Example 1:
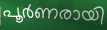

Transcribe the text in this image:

പൂർണരായി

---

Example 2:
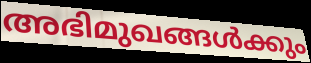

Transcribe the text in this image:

അഭിമുഖങ്ങൾക്കും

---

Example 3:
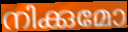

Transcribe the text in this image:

നിക്കുമോ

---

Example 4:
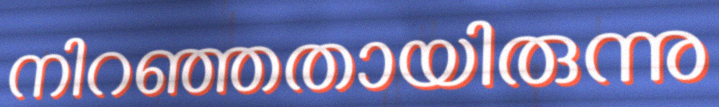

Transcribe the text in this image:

നിറഞ്ഞതായിരുന്നു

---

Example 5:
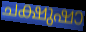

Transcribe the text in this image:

ചക്ഷുഷാ